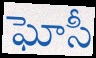
ఘోసీ